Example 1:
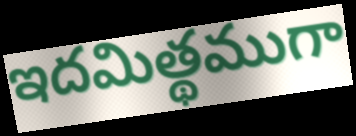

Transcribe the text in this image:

ఇదమిత్థముగా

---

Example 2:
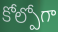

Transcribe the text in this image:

కోల్పోగా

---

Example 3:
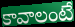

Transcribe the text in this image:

కావాలంటే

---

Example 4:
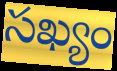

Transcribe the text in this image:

సఖ్యం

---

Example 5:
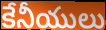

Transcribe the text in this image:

కేనీయులు